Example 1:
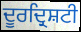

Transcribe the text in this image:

ਦੂਰਦ੍ਰਿਸ਼ਟੀ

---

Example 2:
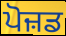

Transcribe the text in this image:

ਪੋਜ਼ਡ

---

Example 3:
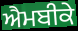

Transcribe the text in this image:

ਐਮਬੀਕੇ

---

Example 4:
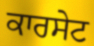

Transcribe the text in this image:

ਕਾਰਸੇਟ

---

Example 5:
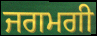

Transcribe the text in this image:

ਜਗਮਗੀ